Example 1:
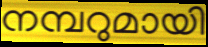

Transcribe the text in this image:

നമ്പറുമായി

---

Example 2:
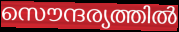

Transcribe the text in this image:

സൌന്ദര്യത്തിൽ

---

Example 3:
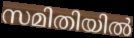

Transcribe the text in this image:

സമിതിയിൽ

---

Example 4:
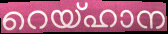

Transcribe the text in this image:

റെയ്ഹാന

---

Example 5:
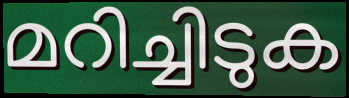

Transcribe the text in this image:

മറിച്ചിടുക